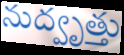
నుద్వృత్తు